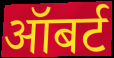
ऑबर्ट